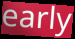
early